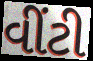
વીંટી